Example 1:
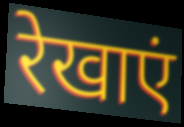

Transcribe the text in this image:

रेखाएं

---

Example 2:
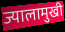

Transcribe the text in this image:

ज्यालामुखी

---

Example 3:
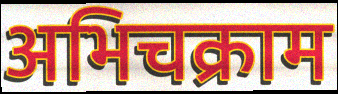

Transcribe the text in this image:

अभिचक्राम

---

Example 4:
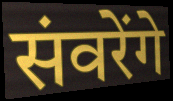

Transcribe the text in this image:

संवरेंगे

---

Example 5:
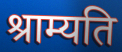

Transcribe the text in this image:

श्राम्यति